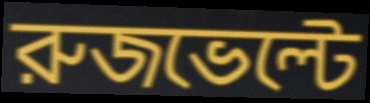
ৰুজভেল্টে